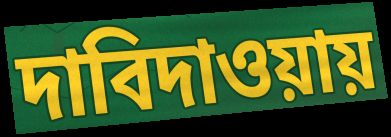
দাবিদাওয়ায়